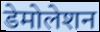
डेमोलेशन